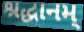
શ્રદ્ધાનમ્